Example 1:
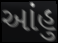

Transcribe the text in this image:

આંહુ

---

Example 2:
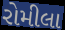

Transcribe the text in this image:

રોમીલા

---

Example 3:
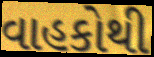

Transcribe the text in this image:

વાહકોથી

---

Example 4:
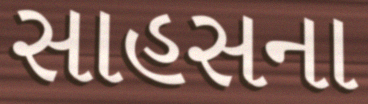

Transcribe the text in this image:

સાહસના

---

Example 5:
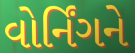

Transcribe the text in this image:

વોર્નિંગને